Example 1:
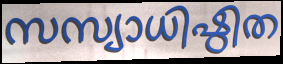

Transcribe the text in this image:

സസ്യാധിഷ്ഠിത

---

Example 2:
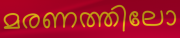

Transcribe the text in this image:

മരണത്തിലോ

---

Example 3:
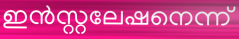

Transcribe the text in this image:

ഇൻസ്റ്റലേഷനെന്ന്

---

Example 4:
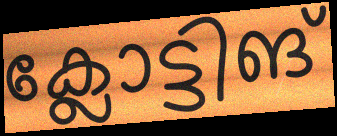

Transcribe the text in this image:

ക്ലോട്ടിങ്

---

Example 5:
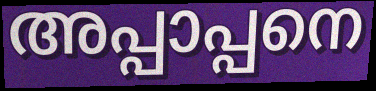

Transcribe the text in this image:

അപ്പാപ്പനെ